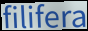
filifera